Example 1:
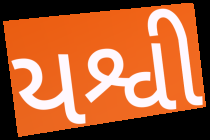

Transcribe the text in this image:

યશ્વી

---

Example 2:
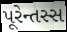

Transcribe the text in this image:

પૂરેન્તસ્સ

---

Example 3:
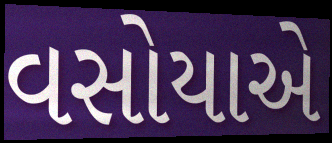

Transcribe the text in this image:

વસોયાએ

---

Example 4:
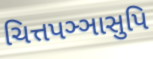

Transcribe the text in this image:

ચિત્તપઞ્ઞાસુપિ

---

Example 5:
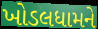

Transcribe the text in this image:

ખોડલધામને